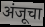
अंजूचा